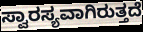
ಸ್ವಾರಸ್ಯವಾಗಿರುತ್ತದೆ